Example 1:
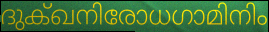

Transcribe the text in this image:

ദുക്ഖനിരോധഗാമിനിം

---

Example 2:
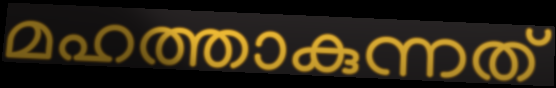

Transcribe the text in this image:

മഹത്താകുന്നത്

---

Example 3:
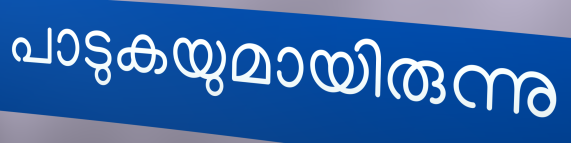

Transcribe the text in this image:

പാടുകയുമായിരുന്നു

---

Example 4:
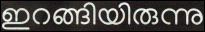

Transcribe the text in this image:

ഇറങ്ങിയിരുന്നു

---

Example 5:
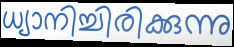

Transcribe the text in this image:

ധ്യാനിച്ചിരിക്കുന്നു